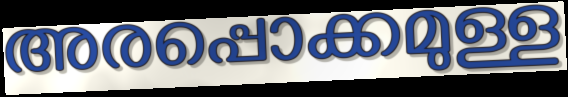
അരപ്പൊക്കമുള്ള